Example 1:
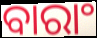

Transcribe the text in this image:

ବାରାଂ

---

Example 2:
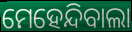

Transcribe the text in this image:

ମେହେନ୍ଦିବାଲା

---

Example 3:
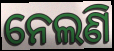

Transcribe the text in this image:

ନେଲଣି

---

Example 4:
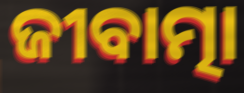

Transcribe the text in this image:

ଜୀବାତ୍ମା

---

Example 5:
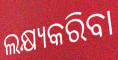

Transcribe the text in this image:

ଲକ୍ଷ୍ୟକରିବା